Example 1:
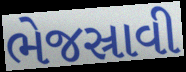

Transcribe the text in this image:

ભેજસ્રાવી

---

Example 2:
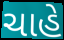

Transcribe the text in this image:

ચાહે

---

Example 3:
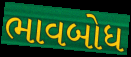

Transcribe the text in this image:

ભાવબોધ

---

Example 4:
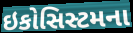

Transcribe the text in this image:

ઇકોસિસ્ટમના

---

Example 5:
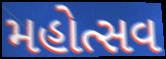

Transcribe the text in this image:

મહોત્સવ